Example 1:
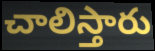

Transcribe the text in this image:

చాలిస్తారు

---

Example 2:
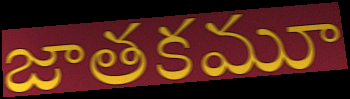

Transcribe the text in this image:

జాతకమూ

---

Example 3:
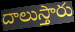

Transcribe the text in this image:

దాలుస్తారు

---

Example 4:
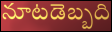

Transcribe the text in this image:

నూటడెబ్బది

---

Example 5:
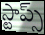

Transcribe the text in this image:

స్టాప్స్